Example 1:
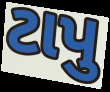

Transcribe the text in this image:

ટાપુ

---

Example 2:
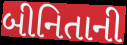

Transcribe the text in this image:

બીનિતાની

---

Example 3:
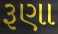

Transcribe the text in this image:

રૂણા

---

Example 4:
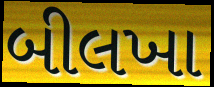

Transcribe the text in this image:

બીલખા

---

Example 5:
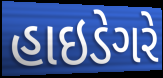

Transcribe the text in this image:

હાઇડેગરે